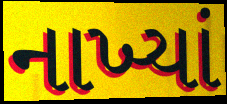
નાખ્યાં